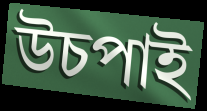
উচপাই